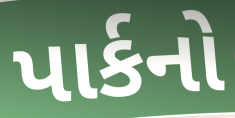
પાર્કનો